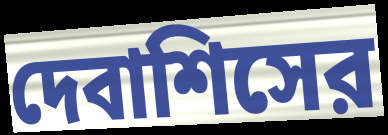
দেবাশিসের